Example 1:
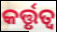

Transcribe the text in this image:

କର୍ତ୍ତୃତ୍ୱ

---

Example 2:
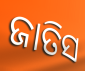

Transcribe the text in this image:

ଜାତିସ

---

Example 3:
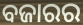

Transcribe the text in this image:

ବଜାରର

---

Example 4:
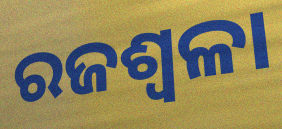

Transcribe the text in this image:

ରଜଶ୍ୱଳା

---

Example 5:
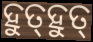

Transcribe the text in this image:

ହୁତ୍‍ହୁତ୍